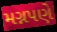
મગ્નપણે